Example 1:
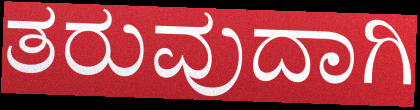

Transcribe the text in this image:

ತರುವುದಾಗಿ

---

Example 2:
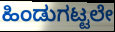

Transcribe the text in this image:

ಹಿಂಡುಗಟ್ಟಲೇ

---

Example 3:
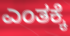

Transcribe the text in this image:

ಎಂತಕ್ಕೆ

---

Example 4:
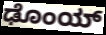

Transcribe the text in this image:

ಢೊಂಯ್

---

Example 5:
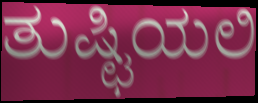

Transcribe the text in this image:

ತುಷ್ಟಿಯಲಿ